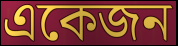
একেজন